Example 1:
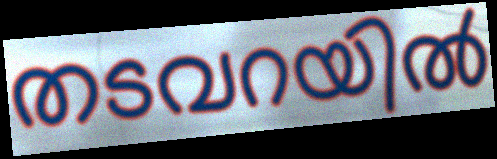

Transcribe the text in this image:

തടവറയിൽ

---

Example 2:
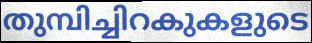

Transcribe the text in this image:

തുമ്പിച്ചിറകുകളുടെ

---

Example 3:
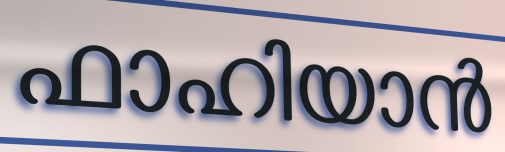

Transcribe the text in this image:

ഫാഹിയാൻ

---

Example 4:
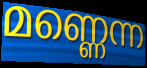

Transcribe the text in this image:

മണ്ണെന്ന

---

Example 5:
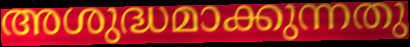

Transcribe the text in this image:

അശുദ്ധമാക്കുന്നതു